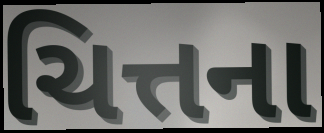
ચિત્તના